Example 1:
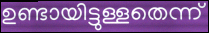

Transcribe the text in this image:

ഉണ്ടായിട്ടുള്ളതെന്ന്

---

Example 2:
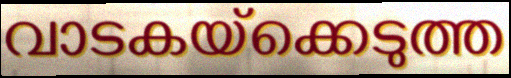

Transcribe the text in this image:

വാടകയ്‌ക്കെടുത്ത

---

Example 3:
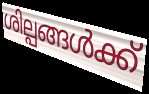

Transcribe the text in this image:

ശില്പങ്ങൾക്ക്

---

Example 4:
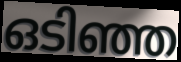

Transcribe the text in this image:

ഒടിഞ്ഞ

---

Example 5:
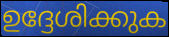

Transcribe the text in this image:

ഉദ്ദേശിക്കുക